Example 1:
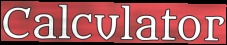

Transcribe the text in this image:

Calculator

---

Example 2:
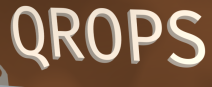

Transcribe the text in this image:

QROPS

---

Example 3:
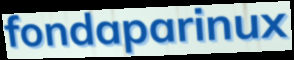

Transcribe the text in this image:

fondaparinux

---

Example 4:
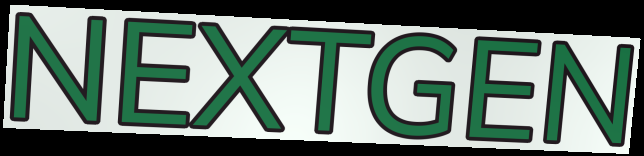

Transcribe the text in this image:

NEXTGEN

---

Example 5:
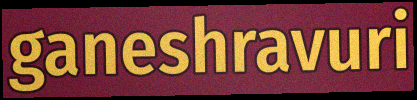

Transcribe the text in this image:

ganeshravuri